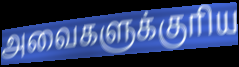
அவைகளுக்குரிய